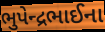
ભુપેન્દ્રભાઈના